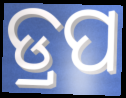
ଡ୍ରପ